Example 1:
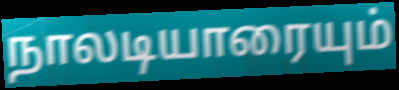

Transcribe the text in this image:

நாலடியாரையும்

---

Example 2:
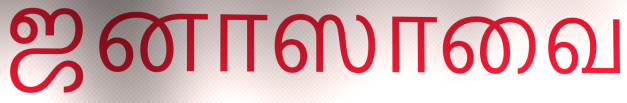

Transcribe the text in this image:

ஜனாஸாவை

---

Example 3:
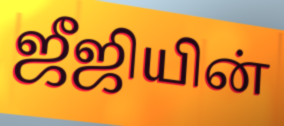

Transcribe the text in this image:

ஜீஜியின்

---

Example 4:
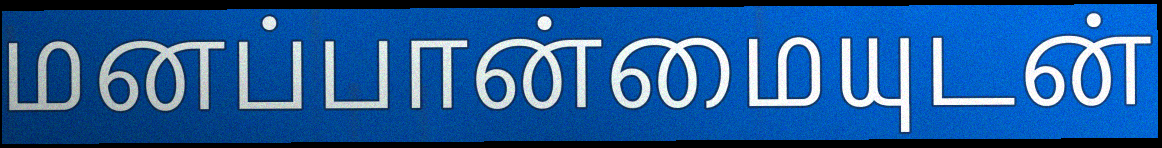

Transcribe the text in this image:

மனப்பான்மையுடன்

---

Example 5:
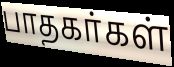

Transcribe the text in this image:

பாதகர்கள்